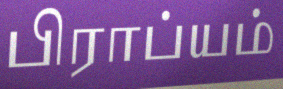
பிராப்யம்